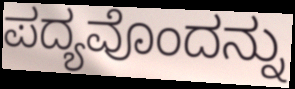
ಪದ್ಯವೊಂದನ್ನು